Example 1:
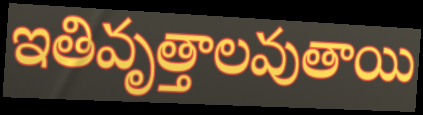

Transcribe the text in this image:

ఇతివృత్తాలవుతాయి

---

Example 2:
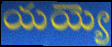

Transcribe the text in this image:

యయ్యె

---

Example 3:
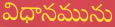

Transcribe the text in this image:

విధానమును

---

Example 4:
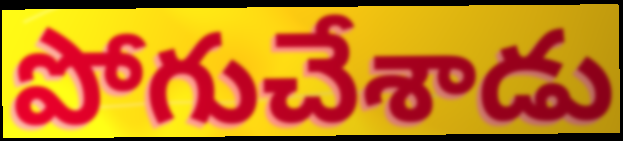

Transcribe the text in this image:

పోగుచేశాడు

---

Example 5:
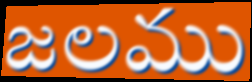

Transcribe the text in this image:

జలము